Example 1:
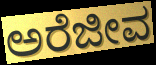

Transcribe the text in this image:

ಅರೆಜೀವ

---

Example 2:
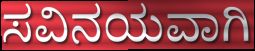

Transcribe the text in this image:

ಸವಿನಯವಾಗಿ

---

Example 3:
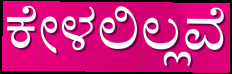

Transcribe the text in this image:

ಕೇಳಲಿಲ್ಲವೆ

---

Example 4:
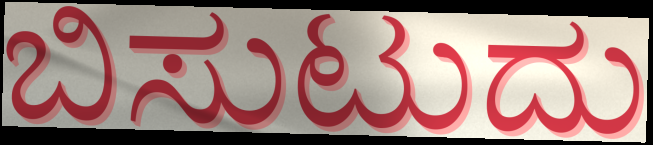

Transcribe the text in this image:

ಬಿಸುಟುದು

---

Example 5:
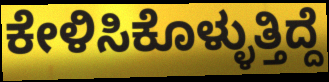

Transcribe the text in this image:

ಕೇಳಿಸಿಕೊಳ್ಳುತ್ತಿದ್ದೆ